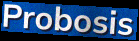
Probosis